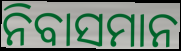
ନିବାସମାନ